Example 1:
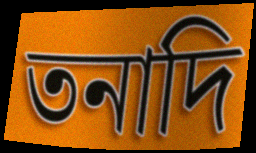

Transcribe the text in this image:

তনাদি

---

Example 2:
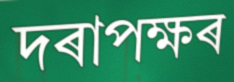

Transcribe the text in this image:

দৰাপক্ষৰ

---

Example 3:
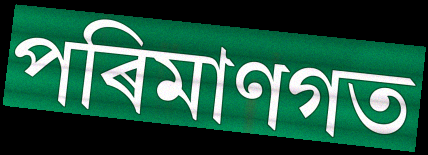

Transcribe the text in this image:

পৰিমাণগত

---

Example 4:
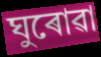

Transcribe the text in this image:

ঘুৰোৱা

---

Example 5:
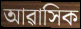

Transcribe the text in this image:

আৱাসিক